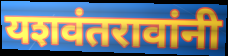
यशवंतरावांनी